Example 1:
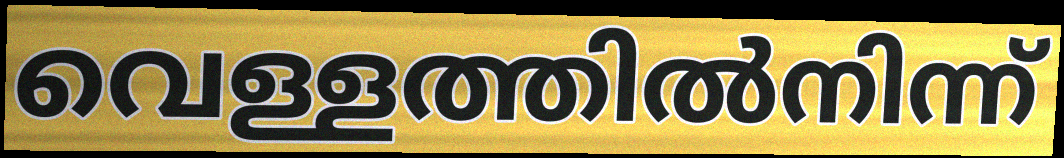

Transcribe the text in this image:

വെള്ളത്തിൽനിന്ന്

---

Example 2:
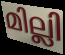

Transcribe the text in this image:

മില്ലി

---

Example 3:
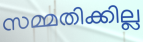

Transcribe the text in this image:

സമ്മതിക്കില്ല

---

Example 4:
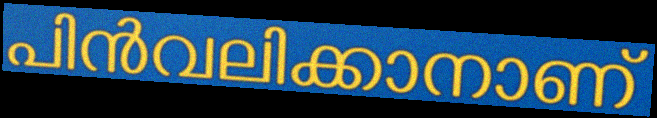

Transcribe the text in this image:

പിൻവലിക്കാനാണ്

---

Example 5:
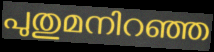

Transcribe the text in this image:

പുതുമനിറഞ്ഞ